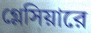
গ্লেসিয়ারে